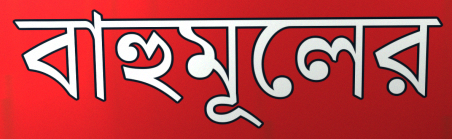
বাহুমূলের